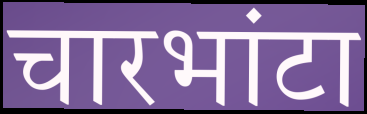
चारभांटा